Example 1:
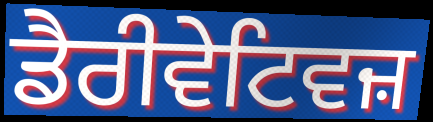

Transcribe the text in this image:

ਡੈਰੀਵੇਟਿਵਜ਼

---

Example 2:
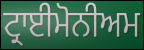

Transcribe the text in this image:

ਟ੍ਰਾਈਮੋਨੀਅਮ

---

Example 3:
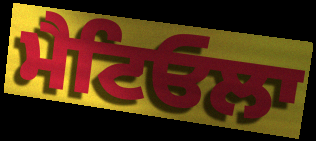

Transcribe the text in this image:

ਮੈਟਿਓਲਾ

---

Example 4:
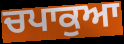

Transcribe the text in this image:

ਚਪਾਕੁਆ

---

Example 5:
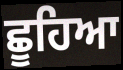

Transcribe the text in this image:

ਛੂਹਿਆ